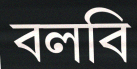
বলবি